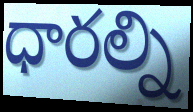
ధారల్ని